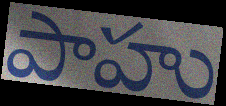
పాహు